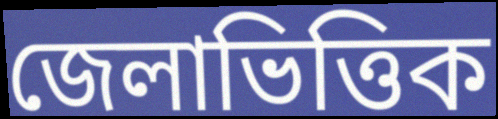
জেলাভিত্তিক